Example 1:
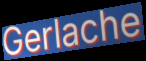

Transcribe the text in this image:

Gerlache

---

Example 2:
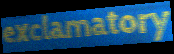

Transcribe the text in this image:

exclamatory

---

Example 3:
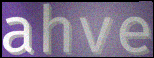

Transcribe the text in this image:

ahve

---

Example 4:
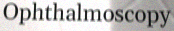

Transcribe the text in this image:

Ophthalmoscopy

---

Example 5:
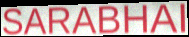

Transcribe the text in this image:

SARABHAI